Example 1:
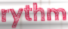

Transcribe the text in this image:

rythm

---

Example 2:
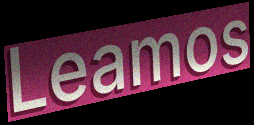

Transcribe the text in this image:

Leamos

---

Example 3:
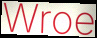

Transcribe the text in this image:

Wroe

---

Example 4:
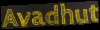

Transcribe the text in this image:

Avadhut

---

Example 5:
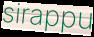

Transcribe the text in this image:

sirappu